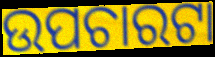
ଉପଚାରଟା